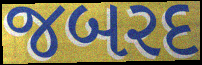
જબરદ